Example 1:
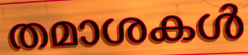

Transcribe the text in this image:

തമാശകൾ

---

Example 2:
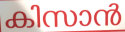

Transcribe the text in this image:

കിസാൻ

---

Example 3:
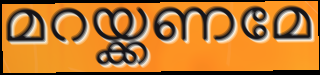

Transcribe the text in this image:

മറയ്ക്കണമേ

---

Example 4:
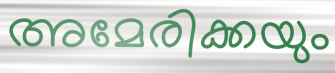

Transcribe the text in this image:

അമേരിക്കയും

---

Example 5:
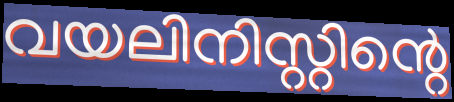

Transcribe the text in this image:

വയലിനിസ്റ്റിന്റെ